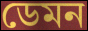
ডেমন